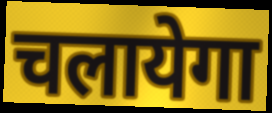
चलायेगा